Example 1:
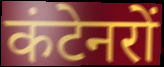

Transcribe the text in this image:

कंटेनरों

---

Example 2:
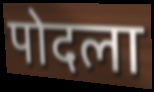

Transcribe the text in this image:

पोदला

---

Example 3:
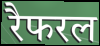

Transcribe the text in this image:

रैफरल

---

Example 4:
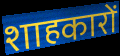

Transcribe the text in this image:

शाहकारों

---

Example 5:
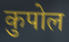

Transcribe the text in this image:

कुपोल